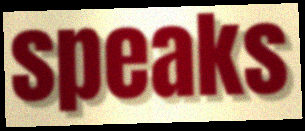
speaks